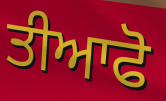
ਤੀਆਫੋ